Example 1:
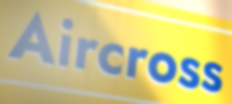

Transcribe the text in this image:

Aircross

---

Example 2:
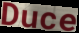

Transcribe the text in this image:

Duce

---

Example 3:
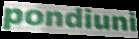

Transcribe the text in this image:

pondiuni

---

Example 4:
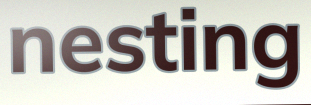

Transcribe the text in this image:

nesting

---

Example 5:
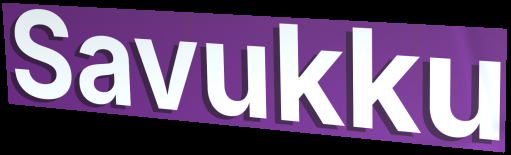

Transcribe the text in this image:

Savukku